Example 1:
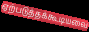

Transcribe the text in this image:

ஏற்படுத்தக்கூடியவை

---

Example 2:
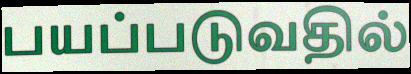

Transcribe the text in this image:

பயப்படுவதில்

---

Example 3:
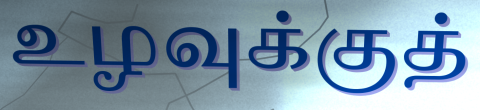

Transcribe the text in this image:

உழவுக்குத்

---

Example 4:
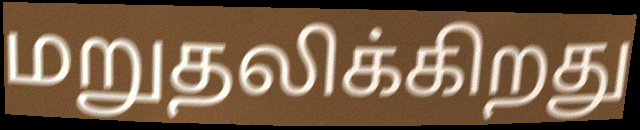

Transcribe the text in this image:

மறுதலிக்கிறது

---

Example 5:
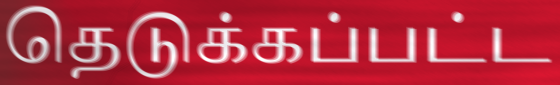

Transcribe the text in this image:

தெடுக்கப்பட்ட